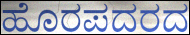
ಹೊರಪದರದ